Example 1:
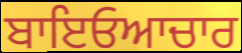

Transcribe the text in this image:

ਬਾਇਓਆਚਾਰ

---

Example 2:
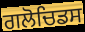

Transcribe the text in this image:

ਗਲੋਚਿਡਸ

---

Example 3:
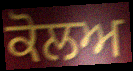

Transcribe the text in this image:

ਕੋਲਅ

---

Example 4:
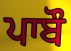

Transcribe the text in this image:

ਪਾਬੌ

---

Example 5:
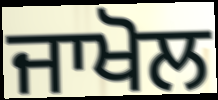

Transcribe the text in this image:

ਜਾਖੋਲ